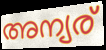
അന്യര്